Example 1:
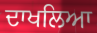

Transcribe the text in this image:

ਦਾਖਲਿਆ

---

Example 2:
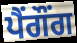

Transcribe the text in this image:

ਪੈਂਗੌਂਗ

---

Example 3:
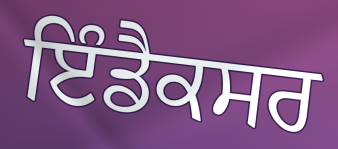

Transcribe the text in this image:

ਇੰਡੈਕਸਰ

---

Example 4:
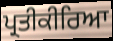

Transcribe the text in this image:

ਪ੍ਰਤੀਕੀਰਿਆ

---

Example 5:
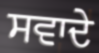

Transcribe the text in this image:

ਸਵਾਦੇ